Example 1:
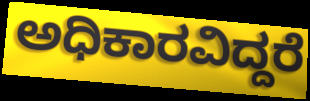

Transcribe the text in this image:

ಅಧಿಕಾರವಿದ್ದರೆ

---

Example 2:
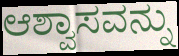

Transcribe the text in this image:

ಆಶ್ವಾಸವನ್ನು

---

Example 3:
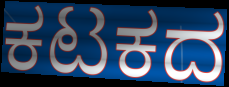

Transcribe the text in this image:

ಕಟಕದ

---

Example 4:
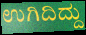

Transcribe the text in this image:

ಉಗಿದಿದ್ದು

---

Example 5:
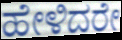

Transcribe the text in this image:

ಹೇಳಿದರೇ